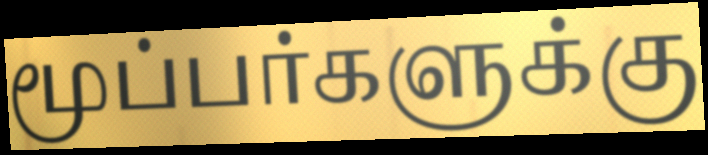
மூப்பர்களுக்கு